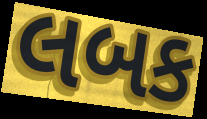
લબક